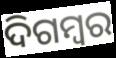
ଦିଗମ୍ୱର